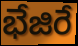
భేజిరే